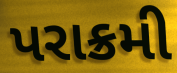
પરાક્રમી